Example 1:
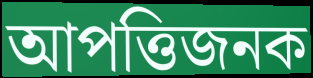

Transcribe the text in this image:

আপত্তিজনক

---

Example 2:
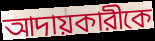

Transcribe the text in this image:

আদায়কারীকে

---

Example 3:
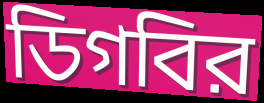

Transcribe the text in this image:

ডিগবির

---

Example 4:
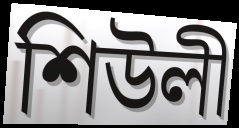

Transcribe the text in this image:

শিউলী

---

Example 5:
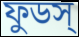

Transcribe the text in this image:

ফুডস্